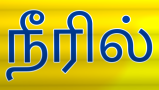
நீரில்